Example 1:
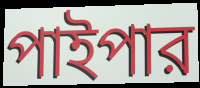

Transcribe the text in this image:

পাইপার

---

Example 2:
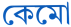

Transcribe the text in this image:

কেমো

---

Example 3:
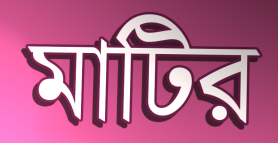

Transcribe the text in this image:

মাটির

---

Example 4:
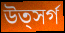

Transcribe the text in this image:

উত্সর্গ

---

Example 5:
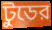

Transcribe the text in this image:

টুডের